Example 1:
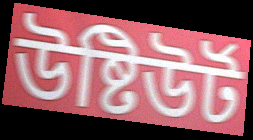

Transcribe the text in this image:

উষ্টিউৰ্ট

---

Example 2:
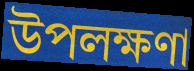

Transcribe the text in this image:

উপলক্ষণা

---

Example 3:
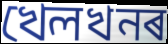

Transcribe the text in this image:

খেলখনৰ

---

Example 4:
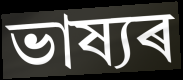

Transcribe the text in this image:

ভাষ্যৰ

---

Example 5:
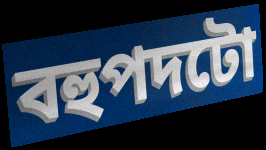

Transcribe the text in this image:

বহুপদটো